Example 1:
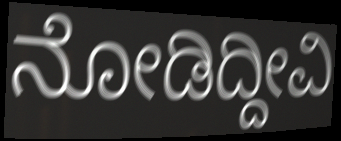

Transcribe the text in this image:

ನೋಡಿದ್ದೀವಿ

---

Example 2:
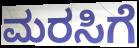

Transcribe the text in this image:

ಮರಸಿಗೆ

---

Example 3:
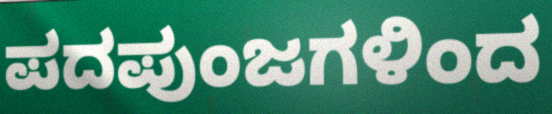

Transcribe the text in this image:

ಪದಪುಂಜಗಳಿಂದ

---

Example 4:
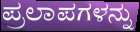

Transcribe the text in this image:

ಪ್ರಲಾಪಗಳನ್ನು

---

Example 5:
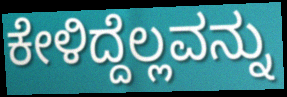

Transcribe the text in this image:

ಕೇಳಿದ್ದೆಲ್ಲವನ್ನು